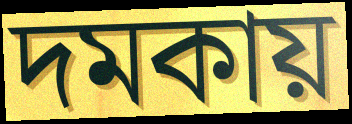
দমকায়